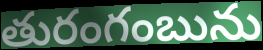
తురంగంబును